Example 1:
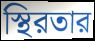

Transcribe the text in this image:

স্থিরতার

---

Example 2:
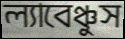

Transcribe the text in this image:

ল্যাবেঞ্চুস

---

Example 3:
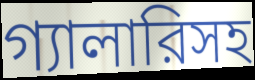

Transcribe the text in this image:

গ্যালারিসহ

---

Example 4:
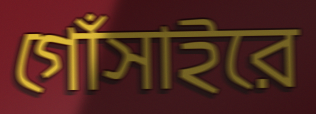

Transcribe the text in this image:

গোঁসাইরে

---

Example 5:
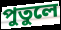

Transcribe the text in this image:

পুতুলে